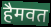
हैमवत